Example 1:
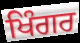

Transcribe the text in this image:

ਖਿੰਗਰ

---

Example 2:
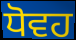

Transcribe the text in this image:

ਧੋਵਹ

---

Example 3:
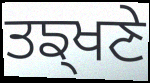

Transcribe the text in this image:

ਤਙ੍ਖਣੇ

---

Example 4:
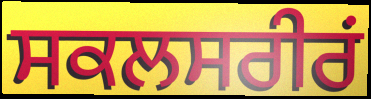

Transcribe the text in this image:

ਸਕਲਸਰੀਰਂ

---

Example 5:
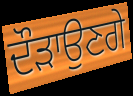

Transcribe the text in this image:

ਦੌੜਾਉਣਗੇ